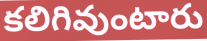
కలిగివుంటారు